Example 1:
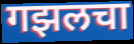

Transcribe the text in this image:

गझलचा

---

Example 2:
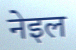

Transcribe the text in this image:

नेइल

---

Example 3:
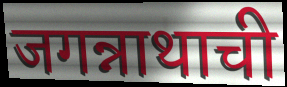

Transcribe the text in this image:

जगन्नाथाची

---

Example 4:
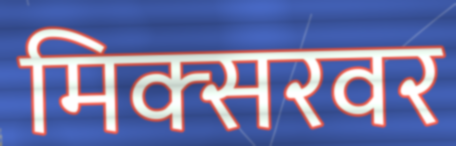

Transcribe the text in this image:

मिक्‍सरवर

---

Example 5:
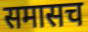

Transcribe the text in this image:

समासच